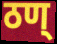
ठण्